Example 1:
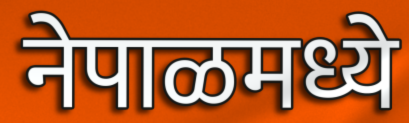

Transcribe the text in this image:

नेपाळमध्ये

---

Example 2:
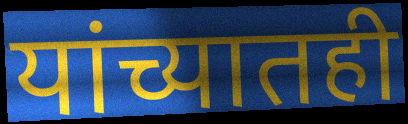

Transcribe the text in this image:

यांच्यातही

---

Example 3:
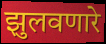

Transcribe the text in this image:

झुलवणारे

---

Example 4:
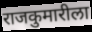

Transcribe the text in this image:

राजकुमारीला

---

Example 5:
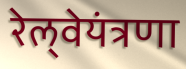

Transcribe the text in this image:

रेल्वेयंत्रणा